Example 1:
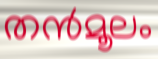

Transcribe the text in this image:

തൻമൂലം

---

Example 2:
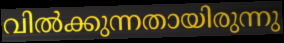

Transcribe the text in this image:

വിൽക്കുന്നതായിരുന്നു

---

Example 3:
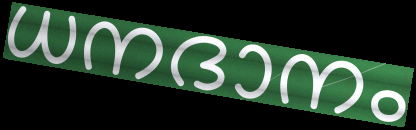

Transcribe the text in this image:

ധനദാനം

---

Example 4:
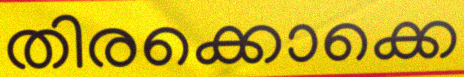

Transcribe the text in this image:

തിരക്കൊക്കെ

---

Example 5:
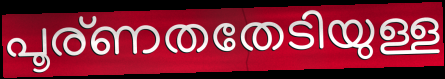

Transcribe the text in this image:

പൂര്ണതതേടിയുള്ള